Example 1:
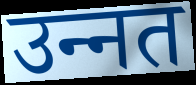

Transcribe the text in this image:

उन्‍नत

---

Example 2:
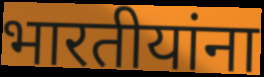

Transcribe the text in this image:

भारतीयांना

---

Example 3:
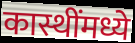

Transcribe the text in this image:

कास्थींमध्ये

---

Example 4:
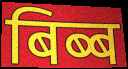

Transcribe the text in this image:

बिब्ब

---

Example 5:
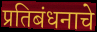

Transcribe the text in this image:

प्रतिबंधनाचे